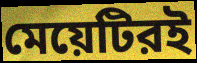
মেয়েটিরই